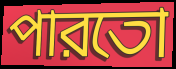
পারতো